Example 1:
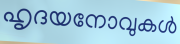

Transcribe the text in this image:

ഹൃദയനോവുകൾ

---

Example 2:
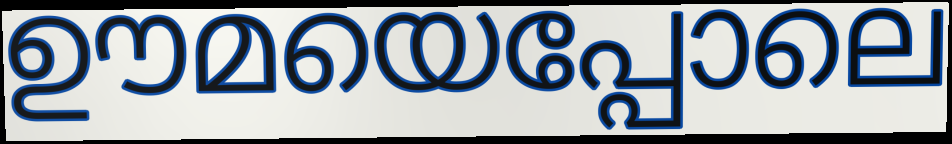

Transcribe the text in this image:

ഊമയെപ്പോലെ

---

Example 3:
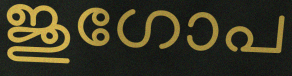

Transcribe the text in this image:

ജുഗോപ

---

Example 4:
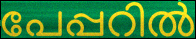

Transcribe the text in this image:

പേപ്പറിൽ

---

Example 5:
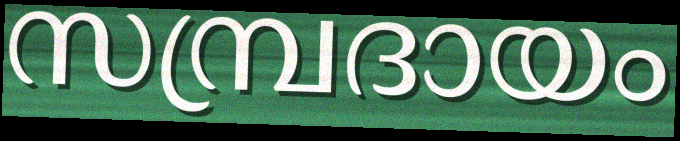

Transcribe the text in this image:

സമ്പ്രദായം